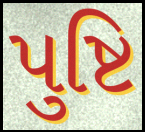
પુષ્ટિ